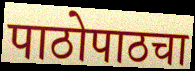
पाठोपाठचा